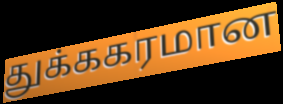
துக்ககரமான